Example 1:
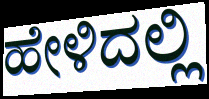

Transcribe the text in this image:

ಹೇಳಿದಲ್ಲಿ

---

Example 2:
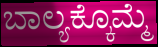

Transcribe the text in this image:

ಬಾಲ್ಯಕ್ಕೊಮ್ಮೆ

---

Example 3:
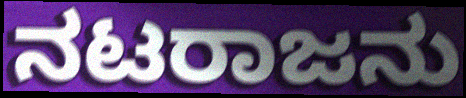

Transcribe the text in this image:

ನಟರಾಜನು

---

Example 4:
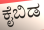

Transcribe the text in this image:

ಕೈಬಿಡ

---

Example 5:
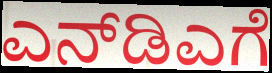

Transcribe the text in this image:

ಎನ್‌ಡಿಎಗೆ